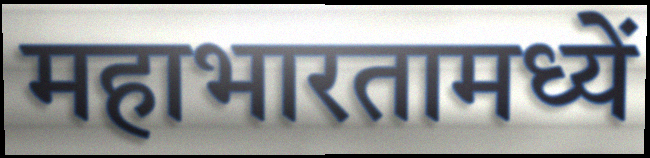
महाभारतामध्यें